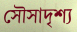
সৌসাদৃশ্য